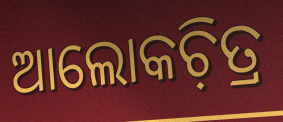
ଆଲୋକଚ଼ିତ୍ର